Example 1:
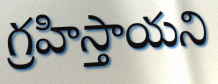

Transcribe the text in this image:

గ్రహిస్తాయని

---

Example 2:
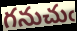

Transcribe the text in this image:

గనుచుఁ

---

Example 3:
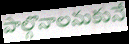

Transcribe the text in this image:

పాల్గొనాలనుకునే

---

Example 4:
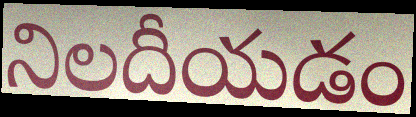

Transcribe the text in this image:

నిలదీయడం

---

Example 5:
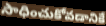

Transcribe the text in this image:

సాధించుకోవడానికే